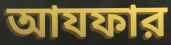
আযফার